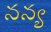
నన్య